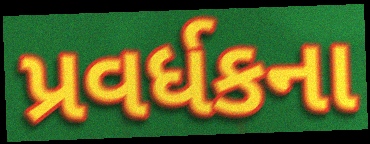
પ્રવર્ધકના